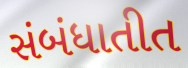
સંબંધાતીત